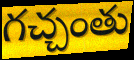
గచ్చంతు